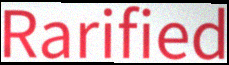
Rarified